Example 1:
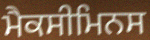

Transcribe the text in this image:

ਮੈਕਸੀਮਿਨਸ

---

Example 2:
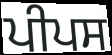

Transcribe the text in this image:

ਪੀਪਸ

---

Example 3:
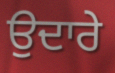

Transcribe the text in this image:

ਉਦਾਰੇ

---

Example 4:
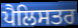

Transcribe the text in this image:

ਪੈਲਿਸਤਰ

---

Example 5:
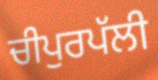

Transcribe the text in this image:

ਚੀਪੁਰਪੱਲੀ